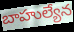
బాహుల్యేన